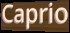
Caprio